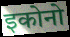
इकोनो